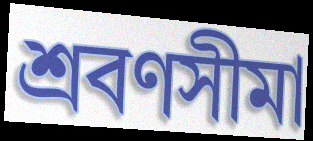
শ্রবণসীমা